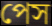
পেস